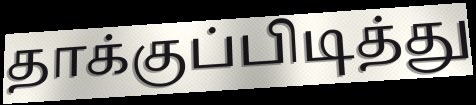
தாக்குப்பிடித்து